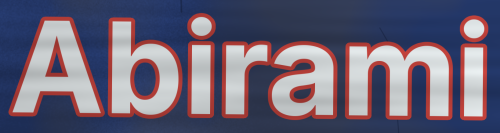
Abirami